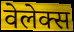
वेलेक्स